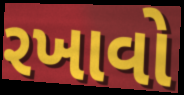
રખાવો